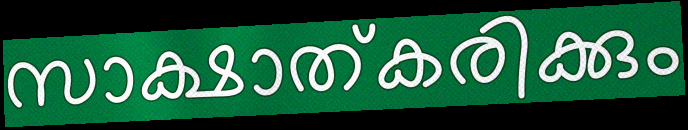
സാക്ഷാത്കരിക്കും